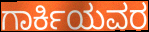
ಗಾರ್ಕಿಯವರ